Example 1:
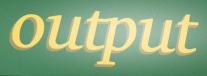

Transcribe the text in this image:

output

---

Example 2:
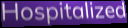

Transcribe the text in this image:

Hospitalized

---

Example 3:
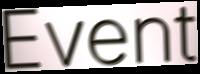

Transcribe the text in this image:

Event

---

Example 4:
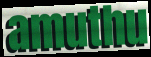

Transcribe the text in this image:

amuthu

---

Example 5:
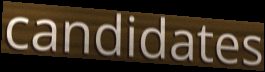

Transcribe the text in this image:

candidates